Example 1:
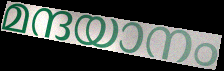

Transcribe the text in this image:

മന്ദയാനം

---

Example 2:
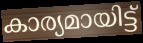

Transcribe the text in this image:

കാര്യമായിട്ട്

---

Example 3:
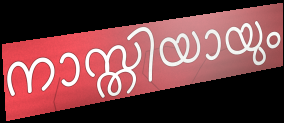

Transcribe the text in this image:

നാസ്തിയായും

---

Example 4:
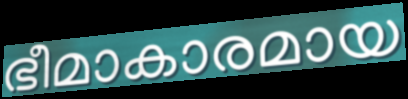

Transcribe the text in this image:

ഭീമാകാരമായ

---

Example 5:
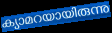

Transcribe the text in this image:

ക്യാമറയായിരുന്നു